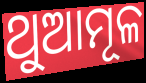
ଥୁଆମୂଳ